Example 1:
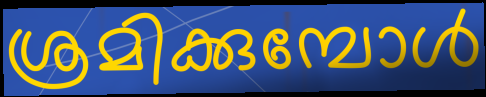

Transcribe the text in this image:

ശ്രമിക്കുമ്പോൾ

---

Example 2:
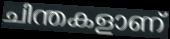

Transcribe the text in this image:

ചിന്തകളാണ്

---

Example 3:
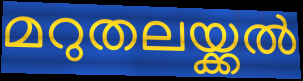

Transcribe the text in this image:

മറുതലയ്ക്കൽ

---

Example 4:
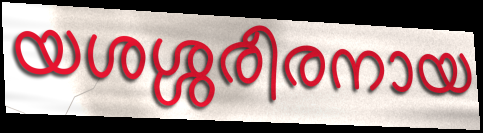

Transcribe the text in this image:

യശശ്ശരീരനായ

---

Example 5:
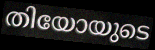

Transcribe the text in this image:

തിയോയുടെ